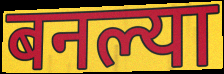
बनल्या